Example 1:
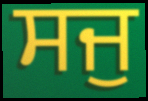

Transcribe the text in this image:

ਸਜੁ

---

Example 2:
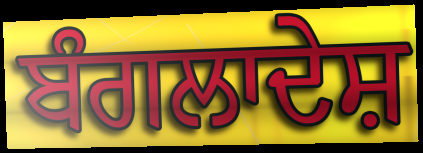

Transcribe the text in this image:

ਬੰਗਲਾਦੇਸ਼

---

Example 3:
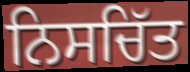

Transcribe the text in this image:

ਨਿਸਚਿੱਤ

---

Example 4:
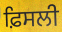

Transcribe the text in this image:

ਫ਼ਿਸਲੀ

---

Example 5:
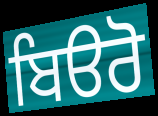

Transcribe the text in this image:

ਬਿੳਰੋ